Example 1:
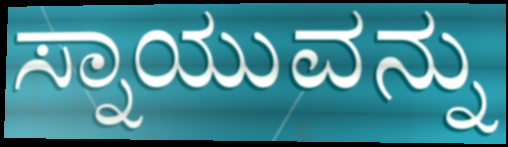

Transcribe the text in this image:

ಸ್ನಾಯುವನ್ನು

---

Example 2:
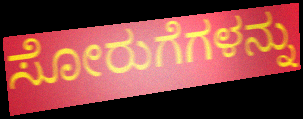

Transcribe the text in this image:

ಸೋರುಗೆಗಳನ್ನು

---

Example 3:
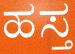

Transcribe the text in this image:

ಹಸ್ತ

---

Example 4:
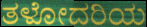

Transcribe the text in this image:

ತಳೋದರಿಯ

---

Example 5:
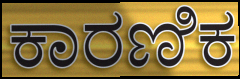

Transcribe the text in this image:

ಕಾರಣಿಕ